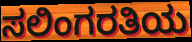
ಸಲಿಂಗರತಿಯ